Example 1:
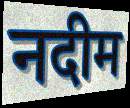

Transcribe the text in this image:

नदीम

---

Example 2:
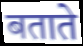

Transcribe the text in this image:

बताते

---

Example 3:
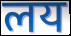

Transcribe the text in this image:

लय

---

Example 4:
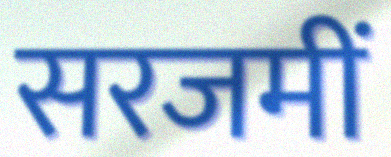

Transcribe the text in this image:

सरजमीं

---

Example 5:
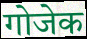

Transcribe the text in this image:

गोजेक